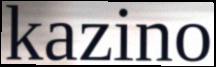
kazino